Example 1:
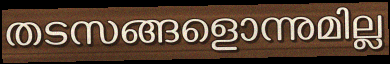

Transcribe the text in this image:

തടസങ്ങളൊന്നുമില്ല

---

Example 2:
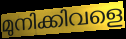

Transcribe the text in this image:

മുനിക്കിവളെ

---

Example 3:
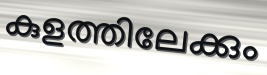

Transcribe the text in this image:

കുളത്തിലേക്കും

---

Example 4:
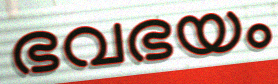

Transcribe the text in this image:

ഭവഭയം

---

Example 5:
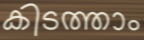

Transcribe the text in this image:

കിടത്താം